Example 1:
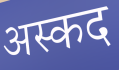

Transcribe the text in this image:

अस्कद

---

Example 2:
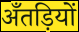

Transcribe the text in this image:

अँतड़ियों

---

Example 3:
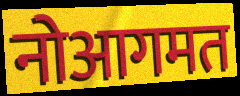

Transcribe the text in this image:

नोआगमत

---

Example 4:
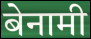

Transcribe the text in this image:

बेनामी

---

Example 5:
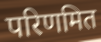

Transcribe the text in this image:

परिणमित